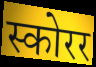
स्कोरर